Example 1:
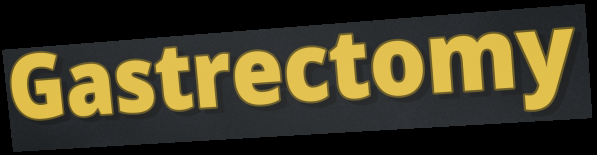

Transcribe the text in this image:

Gastrectomy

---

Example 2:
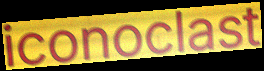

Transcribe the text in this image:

iconoclast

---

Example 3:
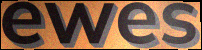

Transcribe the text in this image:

ewes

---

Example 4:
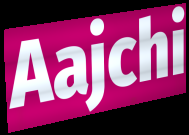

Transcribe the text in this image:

Aajchi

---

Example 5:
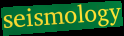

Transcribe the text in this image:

seismology